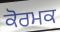
ਕੋਰਮਕ